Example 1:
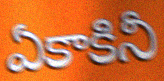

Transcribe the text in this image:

ఏకాకినీ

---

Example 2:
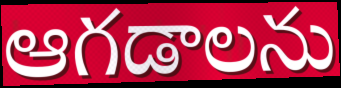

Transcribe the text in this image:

ఆగడాలను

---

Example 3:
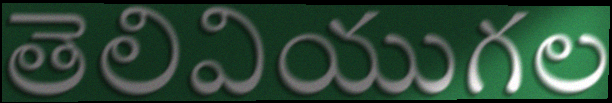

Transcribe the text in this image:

తెలివియుగల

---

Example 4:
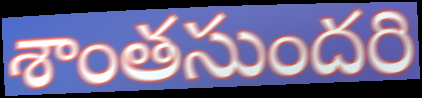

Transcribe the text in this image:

శాంతసుందరి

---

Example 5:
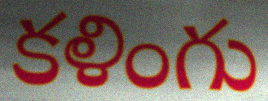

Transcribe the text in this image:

కళింగు